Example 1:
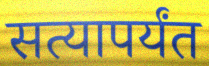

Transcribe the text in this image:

सत्यापर्यंत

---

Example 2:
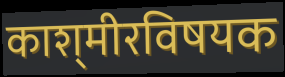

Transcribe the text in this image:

काश्मीरविषयक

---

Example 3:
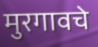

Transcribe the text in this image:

मुरगावचे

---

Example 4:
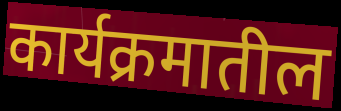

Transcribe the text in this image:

कार्यक्रमातील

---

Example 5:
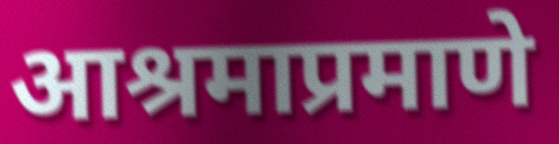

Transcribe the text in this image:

आश्रमाप्रमाणे